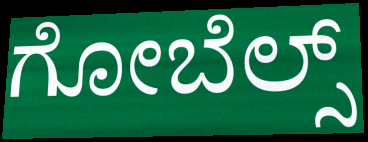
ಗೋಬೆಲ್ಸ್